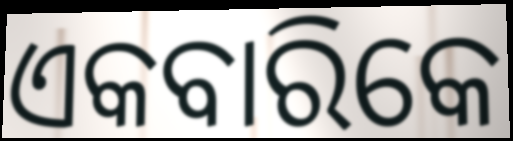
ଏକବାରିକେ